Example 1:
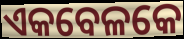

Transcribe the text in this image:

ଏକବେଳକେ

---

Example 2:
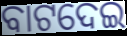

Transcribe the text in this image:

ବାଟଦେଇ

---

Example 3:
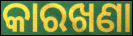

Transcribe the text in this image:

କାରଖଣା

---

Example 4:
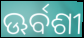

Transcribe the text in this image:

ଊର୍ବଶୀ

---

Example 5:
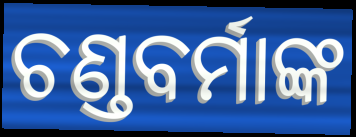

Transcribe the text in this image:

ଚଣ୍ଡବର୍ମାଙ୍କ